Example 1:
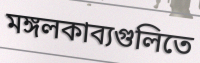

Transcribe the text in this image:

মঙ্গলকাব্যগুলিতে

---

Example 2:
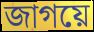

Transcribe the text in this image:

জাগয়ে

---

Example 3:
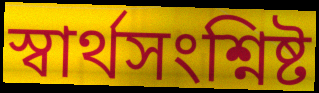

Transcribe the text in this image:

স্বার্থসংশ্নিষ্ট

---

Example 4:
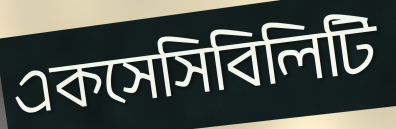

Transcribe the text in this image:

একসেসিবিলিটি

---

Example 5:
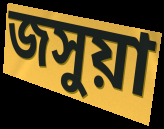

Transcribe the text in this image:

জসুয়া